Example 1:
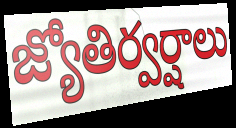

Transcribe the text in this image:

జ్యోతిర్వర్షాలు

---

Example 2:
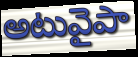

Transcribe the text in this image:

అటువైపా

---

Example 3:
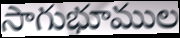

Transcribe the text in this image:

సాగుభూముల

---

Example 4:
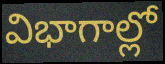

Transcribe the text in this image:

విభాగాల్లో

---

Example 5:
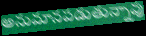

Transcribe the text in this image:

అనుమానపడుతున్నావు